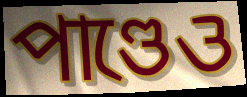
পাণ্ডেও